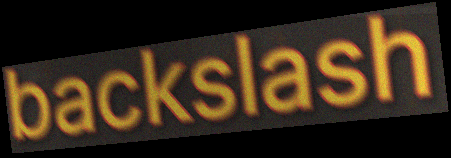
backslash